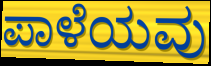
ಪಾಳೆಯವು